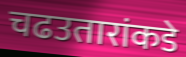
चढउतारांकडे